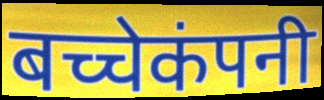
बच्चेकंपनी